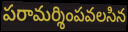
పరామర్శింపవలసిన